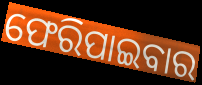
ଫେରିପାଇବାର